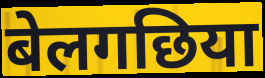
बेलगछिया